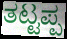
ತಟ್ಟಪ್ಪ